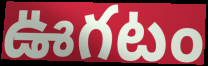
ఊగటం